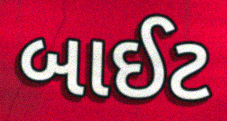
બાઈટ